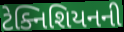
ટેક્નિશિયનની